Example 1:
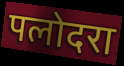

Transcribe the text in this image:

पलोदरा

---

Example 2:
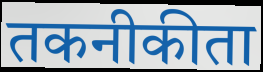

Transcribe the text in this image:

तकनीकीता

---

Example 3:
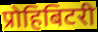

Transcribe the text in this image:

प्रोहिबिटरी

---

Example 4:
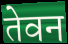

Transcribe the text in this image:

तेवन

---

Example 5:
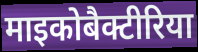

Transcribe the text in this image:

माइकोबैक्टीरिया